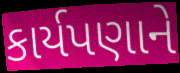
કાર્યપણાને